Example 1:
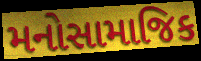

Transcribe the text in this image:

મનોસામાજિક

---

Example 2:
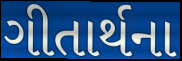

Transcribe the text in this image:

ગીતાર્થના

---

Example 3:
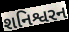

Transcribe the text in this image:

શનિશ્વરન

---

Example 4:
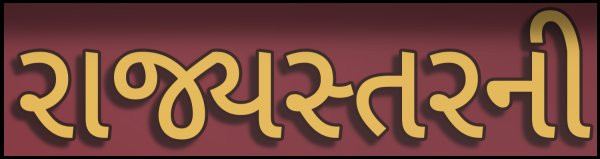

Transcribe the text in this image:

રાજ્યસ્તરની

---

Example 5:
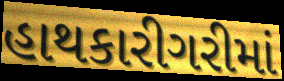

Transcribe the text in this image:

હાથકારીગરીમાં